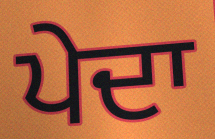
ਪੇਦਾ